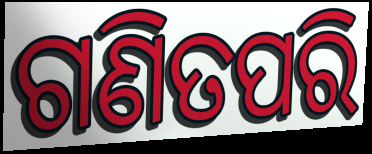
ଗଣିତପରି